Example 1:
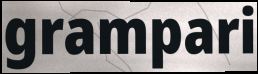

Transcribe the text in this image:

grampari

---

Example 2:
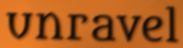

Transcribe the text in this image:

unravel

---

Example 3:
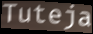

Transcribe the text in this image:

Tuteja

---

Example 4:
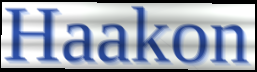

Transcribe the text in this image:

Haakon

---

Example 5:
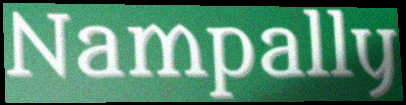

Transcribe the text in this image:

Nampally